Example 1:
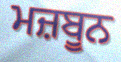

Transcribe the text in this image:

ਮਜ਼ਬੂਨ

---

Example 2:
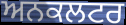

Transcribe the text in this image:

ਅਨਕਲਟਰ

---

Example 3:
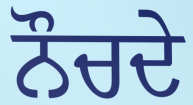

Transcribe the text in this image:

ਨੌਚਦੇ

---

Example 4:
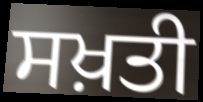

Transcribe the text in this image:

ਸਖ਼ਤੀ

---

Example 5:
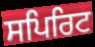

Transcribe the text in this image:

ਸਪਿਰਿਟ